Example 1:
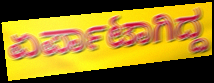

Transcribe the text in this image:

ಏರ್ಪಾಟಾಗಿದ್ದ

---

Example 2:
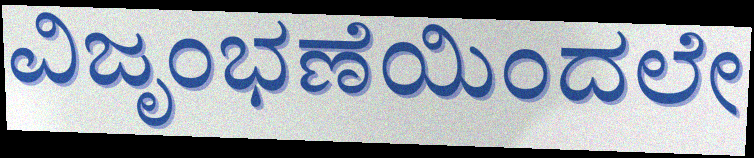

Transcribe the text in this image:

ವಿಜೃಂಭಣೆಯಿಂದಲೇ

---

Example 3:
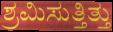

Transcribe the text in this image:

ಶ್ರಮಿಸುತ್ತಿತ್ತು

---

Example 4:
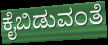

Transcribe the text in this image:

ಕೈಬಿಡುವಂತೆ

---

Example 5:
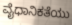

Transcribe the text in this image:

ವೈಧಾನಿಕತೆಯು